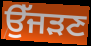
ਉੱਜੜਣ